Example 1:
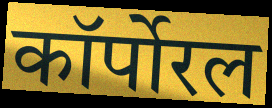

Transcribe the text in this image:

कॉर्पोरल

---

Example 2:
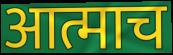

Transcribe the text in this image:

आत्माच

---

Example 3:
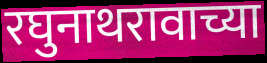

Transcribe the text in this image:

रघुनाथरावाच्या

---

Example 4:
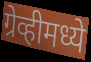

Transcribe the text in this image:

ग्रेव्हीमध्ये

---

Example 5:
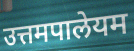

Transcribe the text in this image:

उत्तमपालेयम